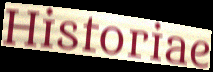
Historiae